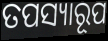
ତପସ୍ୟାରୂପ